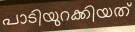
പാടിയുറക്കിയത്